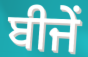
ਬੀਜੇਂ